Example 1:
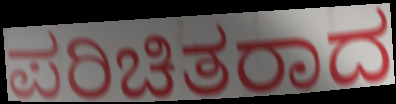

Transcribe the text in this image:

ಪರಿಚಿತರಾದ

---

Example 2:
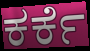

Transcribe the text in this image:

ಕರ್ಕೆ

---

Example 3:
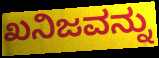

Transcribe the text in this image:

ಖನಿಜವನ್ನು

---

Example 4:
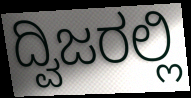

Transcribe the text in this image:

ದ್ವಿಜರಲ್ಲಿ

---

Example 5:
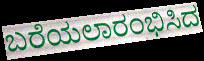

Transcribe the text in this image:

ಬರೆಯಲಾರಂಭಿಸಿದ